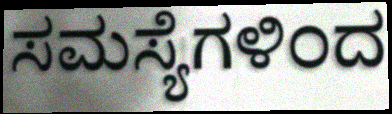
ಸಮಸ್ಯೆಗಳಿಂದ